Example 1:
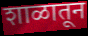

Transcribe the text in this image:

शाळातून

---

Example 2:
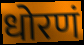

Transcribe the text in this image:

धोरणं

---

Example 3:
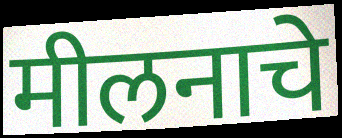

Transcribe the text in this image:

मीलनाचे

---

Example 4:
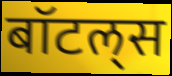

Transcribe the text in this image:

बॉटल्स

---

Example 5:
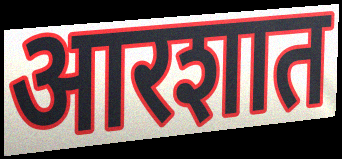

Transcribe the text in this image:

आरशात